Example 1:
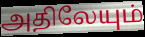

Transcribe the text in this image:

அதிலேயும்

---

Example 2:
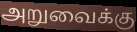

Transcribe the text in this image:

அறுவைக்கு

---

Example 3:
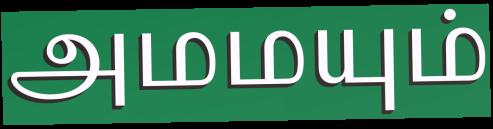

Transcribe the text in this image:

அமமயும்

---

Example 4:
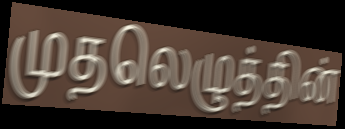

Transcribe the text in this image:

முதலெழுத்தின்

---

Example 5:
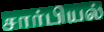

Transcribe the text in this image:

சார்பியல்